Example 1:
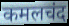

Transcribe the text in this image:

कमलचंद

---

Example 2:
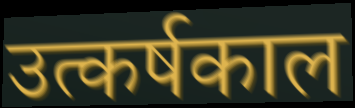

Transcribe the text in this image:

उत्कर्षकाल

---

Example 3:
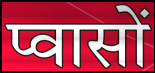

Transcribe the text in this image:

प्वासों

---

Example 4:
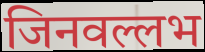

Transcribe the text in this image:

जिनवल्लभ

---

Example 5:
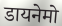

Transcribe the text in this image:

डायनेमो